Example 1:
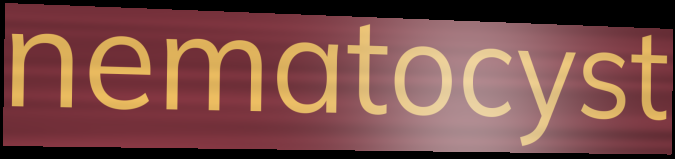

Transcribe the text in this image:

nematocyst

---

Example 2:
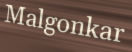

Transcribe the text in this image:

Malgonkar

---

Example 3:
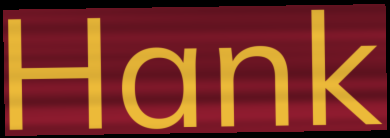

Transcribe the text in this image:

Hank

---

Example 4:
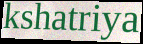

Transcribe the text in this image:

kshatriya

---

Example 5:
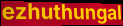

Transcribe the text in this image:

ezhuthungal